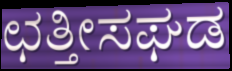
ಛತ್ತೀಸಘಡ